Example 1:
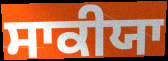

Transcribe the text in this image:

ਸਾਕੀਯਾ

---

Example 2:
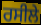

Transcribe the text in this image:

ਰਸੀਲੇ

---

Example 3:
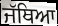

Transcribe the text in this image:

ਜੱਥਿਆ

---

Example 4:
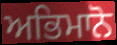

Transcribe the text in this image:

ਅਭਿਮਾਨੋ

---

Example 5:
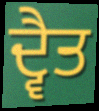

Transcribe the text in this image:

ਦ੍ਵੈਤ